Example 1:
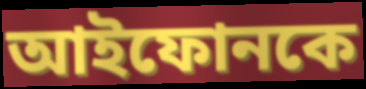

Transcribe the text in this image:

আইফোনকে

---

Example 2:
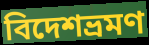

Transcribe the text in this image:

বিদেশভ্রমণ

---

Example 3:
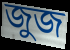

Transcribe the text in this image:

জুজ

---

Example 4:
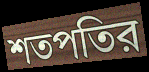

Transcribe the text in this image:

শতপতির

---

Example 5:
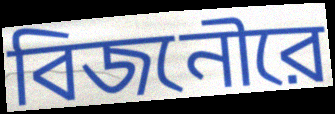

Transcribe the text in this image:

বিজনৌরে